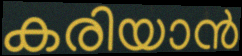
കരിയാൻ